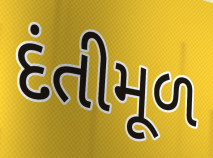
દંતીમૂળ